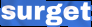
surget